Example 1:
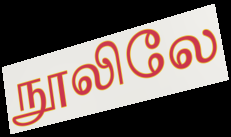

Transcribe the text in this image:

நூலிலே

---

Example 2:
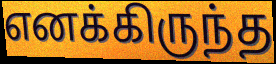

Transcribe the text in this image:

எனக்கிருந்த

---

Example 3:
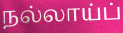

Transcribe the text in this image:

நல்லாய்ப்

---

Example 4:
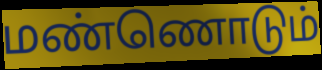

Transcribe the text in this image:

மண்ணொடும்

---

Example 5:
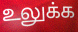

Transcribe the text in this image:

உலுக்க